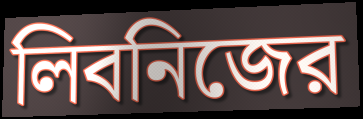
লিবনিজের